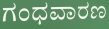
ಗಂಧವಾರಣ